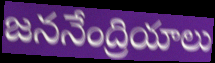
జననేంద్రియాలు